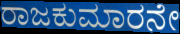
ರಾಜಕುಮಾರನೇ